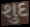
શુદ